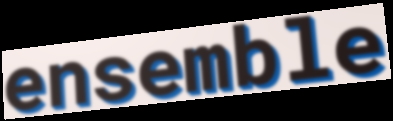
ensemble